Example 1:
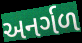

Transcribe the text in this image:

અનર્ગળ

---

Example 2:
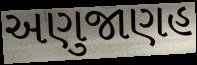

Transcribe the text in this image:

અણુજાણહ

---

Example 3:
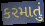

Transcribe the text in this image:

કરમાતું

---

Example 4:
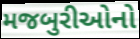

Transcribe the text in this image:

મજબુરીઓનો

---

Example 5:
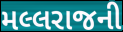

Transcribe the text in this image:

મલ્લરાજની